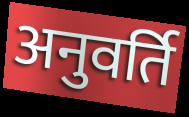
अनुवर्ति